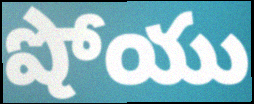
షోయు